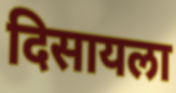
दिसायला